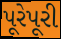
પૂરેપૂરી